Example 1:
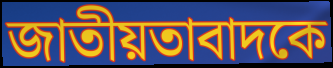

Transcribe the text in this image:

জাতীয়তাবাদকে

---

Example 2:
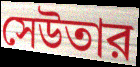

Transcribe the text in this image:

সেউতার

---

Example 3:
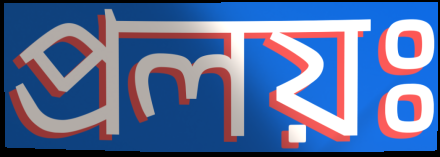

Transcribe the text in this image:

প্রলয়ঃ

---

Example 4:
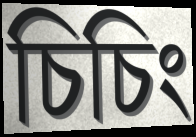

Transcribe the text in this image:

চিচিং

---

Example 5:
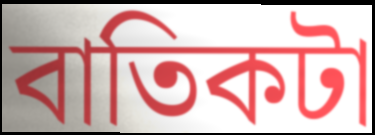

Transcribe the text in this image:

বাতিকটা